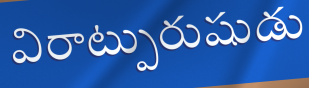
విరాట్పురుషుడు